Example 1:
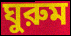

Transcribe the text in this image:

ঘুরুম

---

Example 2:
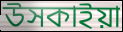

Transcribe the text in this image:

উসকাইয়া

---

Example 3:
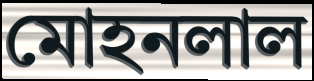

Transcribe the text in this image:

মোহনলাল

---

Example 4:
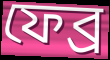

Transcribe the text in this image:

ফেব্র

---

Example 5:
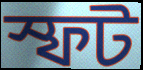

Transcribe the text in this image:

স্ফট